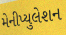
મેનીપ્યુલેશન